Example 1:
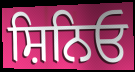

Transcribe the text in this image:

ਸ਼ਿਨਿਓ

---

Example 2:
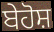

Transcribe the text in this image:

ਬੇਹੋਸ਼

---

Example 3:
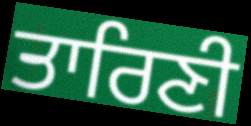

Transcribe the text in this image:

ਤਾਰਿਣੀ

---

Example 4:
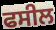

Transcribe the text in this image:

ਫਸੀਲ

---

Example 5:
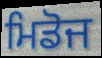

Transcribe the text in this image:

ਮਿਡੋਜ